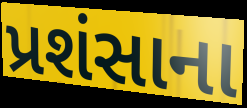
પ્રશંસાના